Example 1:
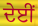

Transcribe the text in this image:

ਦੇਈਂ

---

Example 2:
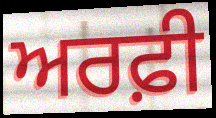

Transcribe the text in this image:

ਅਰਫ਼ੀ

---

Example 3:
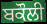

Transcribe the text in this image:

ਬਕੌਲੀ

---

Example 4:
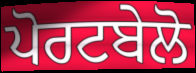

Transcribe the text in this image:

ਪੋਰਟਬੇਲੋ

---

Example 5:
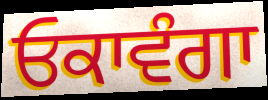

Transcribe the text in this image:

ਓਕਾਵੰਗਾ